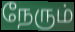
நேரும்